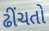
ઢીંચતો